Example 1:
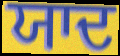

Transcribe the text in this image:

ਯਾਦ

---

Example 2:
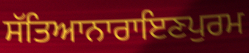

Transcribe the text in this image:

ਸੱਤਿਆਨਾਰਾਇਣਪੁਰਮ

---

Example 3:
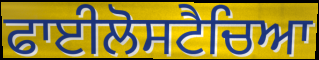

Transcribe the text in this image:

ਫਾਈਲੋਸਟੈਚਿਆ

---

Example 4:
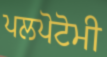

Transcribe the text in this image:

ਪਲਪੋਟੋਮੀ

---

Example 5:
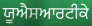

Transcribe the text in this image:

ਯੂਐਸਆਰਟੀਕੇ